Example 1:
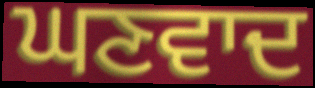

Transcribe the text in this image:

ਘਣਵਾਦ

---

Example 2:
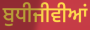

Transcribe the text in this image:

ਬੁਧੀਜੀਵੀਆਂ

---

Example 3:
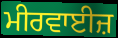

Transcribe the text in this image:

ਮੀਰਵਾਈਜ਼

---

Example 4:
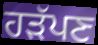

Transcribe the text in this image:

ਹੜੱਪਣ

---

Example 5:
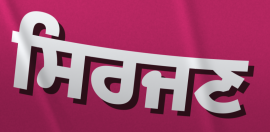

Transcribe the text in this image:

ਸਿਰਜਣ